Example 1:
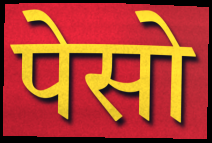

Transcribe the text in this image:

पेसो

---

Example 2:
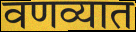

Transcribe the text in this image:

वणव्यात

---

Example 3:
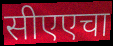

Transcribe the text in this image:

सीएएचा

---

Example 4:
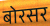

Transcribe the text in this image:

बोरसर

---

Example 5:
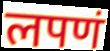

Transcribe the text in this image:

लपणं